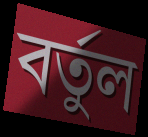
বর্তুল